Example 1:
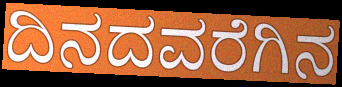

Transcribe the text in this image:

ದಿನದವರೆಗಿನ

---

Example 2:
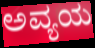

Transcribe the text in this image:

ಅವ್ಯಯ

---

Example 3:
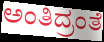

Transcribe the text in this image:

ಅಂತಿದ್ರಂತೆ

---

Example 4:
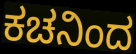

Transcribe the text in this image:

ಕಚನಿಂದ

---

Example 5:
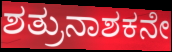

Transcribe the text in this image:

ಶತ್ರುನಾಶಕನೇ